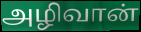
அழிவான்